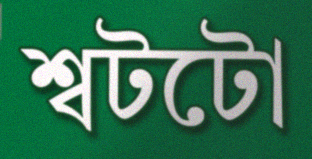
শ্বটটো